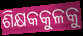
ଶିକ୍ଷକକୁଳକୁ